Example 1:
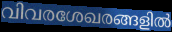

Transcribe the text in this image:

വിവരശേഖരങ്ങളിൽ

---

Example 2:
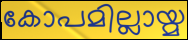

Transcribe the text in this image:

കോപമില്ലായ്മ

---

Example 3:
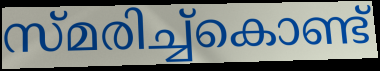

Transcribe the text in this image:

സ്മരിച്ച്കൊണ്ട്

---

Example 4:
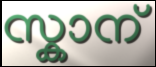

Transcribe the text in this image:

സ്കാന്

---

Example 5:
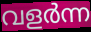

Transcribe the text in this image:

വളർന്ന